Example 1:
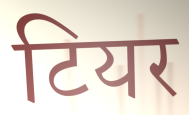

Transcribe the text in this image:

टियर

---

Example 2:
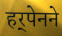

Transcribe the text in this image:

हर्पेनने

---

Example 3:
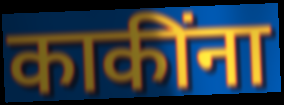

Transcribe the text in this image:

काकींना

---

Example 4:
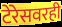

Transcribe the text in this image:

टेरेसवरही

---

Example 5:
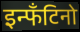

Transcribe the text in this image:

इन्फँटिनो